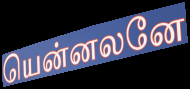
யென்னலனே